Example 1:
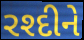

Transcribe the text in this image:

રશ્દીને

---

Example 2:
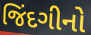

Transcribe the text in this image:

જિંદગીનો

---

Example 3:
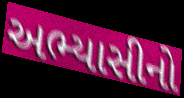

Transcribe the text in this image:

અભ્યાસીનો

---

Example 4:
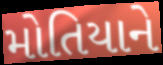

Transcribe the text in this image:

મોતિયાને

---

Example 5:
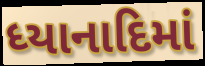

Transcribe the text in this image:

ધ્યાનાદિમાં